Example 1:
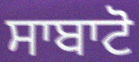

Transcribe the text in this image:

ਸਾਬਾਟੋ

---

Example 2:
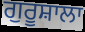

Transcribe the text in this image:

ਗੁਰੂਸ਼ਾਲਾ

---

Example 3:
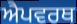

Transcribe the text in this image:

ਐਪਵਰਥ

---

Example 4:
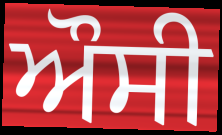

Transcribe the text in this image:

ਔਸੀ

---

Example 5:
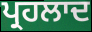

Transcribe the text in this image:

ਪ੍ਰਹਲਾਦ